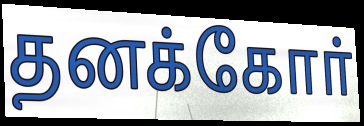
தனக்கோர்